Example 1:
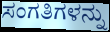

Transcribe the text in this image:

ಸಂಗತಿಗಳನ್ನು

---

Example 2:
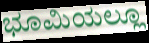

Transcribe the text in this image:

ಭೂಮಿಯಲ್ಲೂ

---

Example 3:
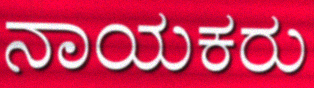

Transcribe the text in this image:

ನಾಯಕರು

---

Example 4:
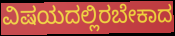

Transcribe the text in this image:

ವಿಷಯದಲ್ಲಿರಬೇಕಾದ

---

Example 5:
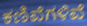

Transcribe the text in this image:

ಕಣಿವೆಗಳಿವೆ